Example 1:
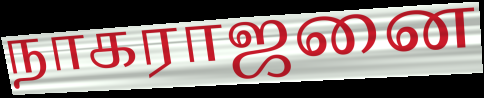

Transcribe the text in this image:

நாகராஜனை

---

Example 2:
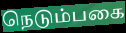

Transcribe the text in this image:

நெடும்பகை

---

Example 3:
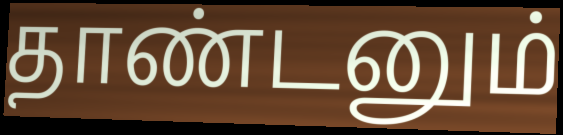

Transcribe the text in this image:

தாண்டனும்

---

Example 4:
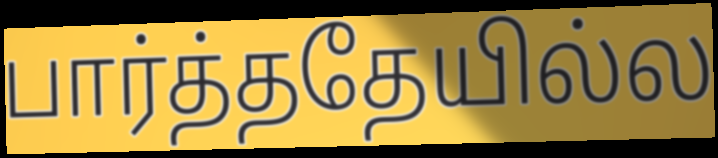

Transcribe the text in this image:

பார்த்ததேயில்ல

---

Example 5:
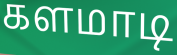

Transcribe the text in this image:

களமாடி